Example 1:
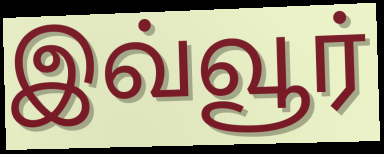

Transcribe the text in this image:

இவ்வூர்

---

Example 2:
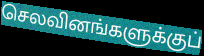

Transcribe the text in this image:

செலவினங்களுக்குப்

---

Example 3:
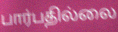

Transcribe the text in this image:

பார்பதில்லை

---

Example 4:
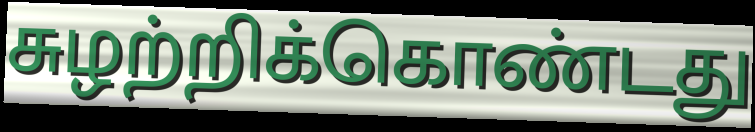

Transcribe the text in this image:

சுழற்றிக்கொண்டது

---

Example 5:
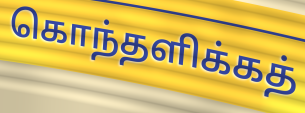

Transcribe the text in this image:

கொந்தளிக்கத்